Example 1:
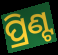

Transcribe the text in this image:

ପ୍ରିଣ୍ଟ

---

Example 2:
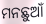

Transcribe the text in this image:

ମନଛୁଆଁ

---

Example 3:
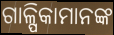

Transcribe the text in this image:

ଗାଳ୍ପିକାମାନଙ୍କ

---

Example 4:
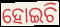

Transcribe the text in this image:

ହୋଇଚି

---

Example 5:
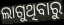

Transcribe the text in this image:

ଲାଗୁଥିବାରୁ